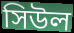
সিউল